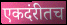
एकदंरीतच